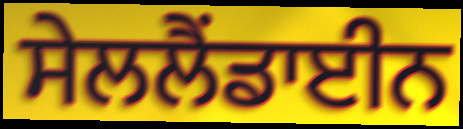
ਸੇਲਲੈਂਡਾਈਨ